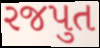
રજપુત